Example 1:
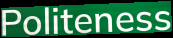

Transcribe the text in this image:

Politeness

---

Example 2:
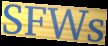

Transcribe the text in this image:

SFWs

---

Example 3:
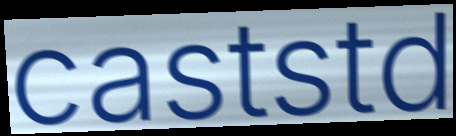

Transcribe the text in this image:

caststd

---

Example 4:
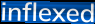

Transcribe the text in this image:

inflexed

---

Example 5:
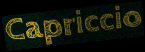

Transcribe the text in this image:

Capriccio